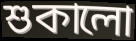
শুকালো